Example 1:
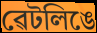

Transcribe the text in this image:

ৱেটলিঙে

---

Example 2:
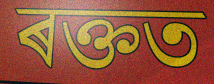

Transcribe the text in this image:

ৰক্তত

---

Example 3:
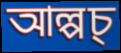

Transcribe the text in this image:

আল্পচ্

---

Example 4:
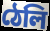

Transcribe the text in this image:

ঠেলি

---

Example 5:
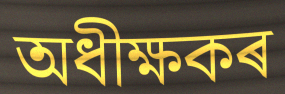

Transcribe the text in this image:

অধীক্ষকৰ